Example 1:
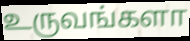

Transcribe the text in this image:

உருவங்களா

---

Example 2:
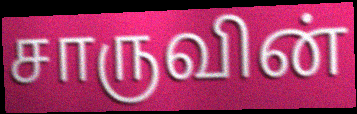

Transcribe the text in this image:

சாருவின்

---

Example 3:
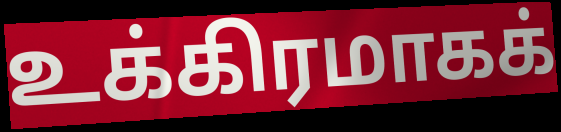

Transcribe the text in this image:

உக்கிரமாகக்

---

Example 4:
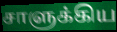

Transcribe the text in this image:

சாளுக்கிய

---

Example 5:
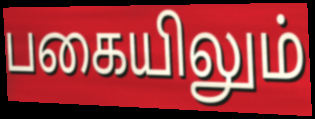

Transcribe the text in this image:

பகையிலும்